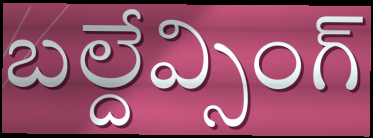
బల్దేవ్సింగ్